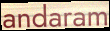
andaram